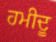
ਹਮੀਦੂ